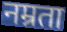
नम्रता